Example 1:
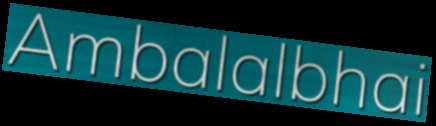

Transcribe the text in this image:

Ambalalbhai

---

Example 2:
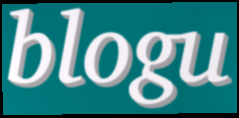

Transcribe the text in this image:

blogu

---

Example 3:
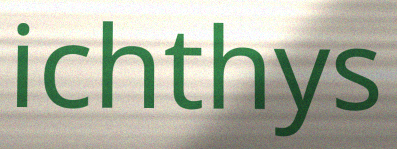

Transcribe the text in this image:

ichthys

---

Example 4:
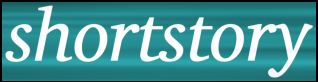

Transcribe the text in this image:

shortstory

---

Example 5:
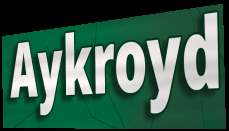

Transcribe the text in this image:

Aykroyd